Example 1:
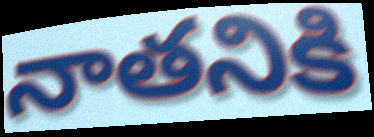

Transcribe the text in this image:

నాతనికి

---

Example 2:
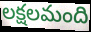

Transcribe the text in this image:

లక్షలమంది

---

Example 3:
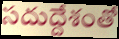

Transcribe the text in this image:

సదుద్దేశంతో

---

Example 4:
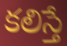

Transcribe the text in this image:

కలిస్తే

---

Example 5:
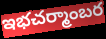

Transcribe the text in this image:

ఇభచర్మాంబర